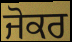
ਜੋਕਰ